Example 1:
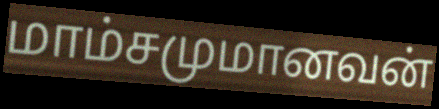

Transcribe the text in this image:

மாம்சமுமானவன்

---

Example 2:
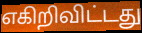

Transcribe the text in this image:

எகிறிவிட்டது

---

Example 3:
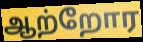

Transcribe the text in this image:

ஆற்றோர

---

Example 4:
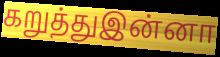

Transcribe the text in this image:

கறுத்துஇன்னா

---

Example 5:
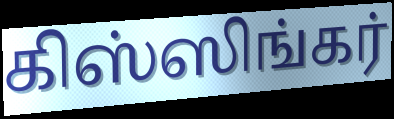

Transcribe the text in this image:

கிஸ்ஸிங்கர்